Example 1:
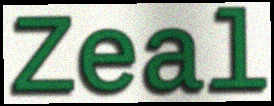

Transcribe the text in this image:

Zeal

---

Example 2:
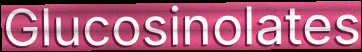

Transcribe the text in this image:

Glucosinolates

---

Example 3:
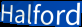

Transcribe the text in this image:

Halford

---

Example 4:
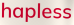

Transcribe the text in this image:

hapless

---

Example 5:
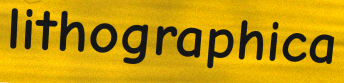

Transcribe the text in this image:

lithographica